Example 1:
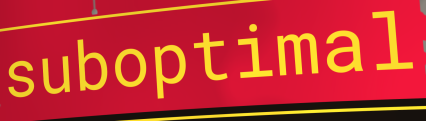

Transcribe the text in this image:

suboptimal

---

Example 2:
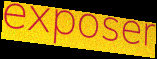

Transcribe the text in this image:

exposer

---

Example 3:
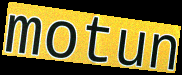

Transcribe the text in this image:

motun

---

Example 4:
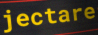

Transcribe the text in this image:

jectare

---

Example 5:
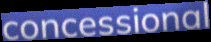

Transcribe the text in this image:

concessional